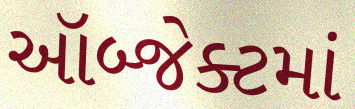
ઑબ્જેક્ટમાં